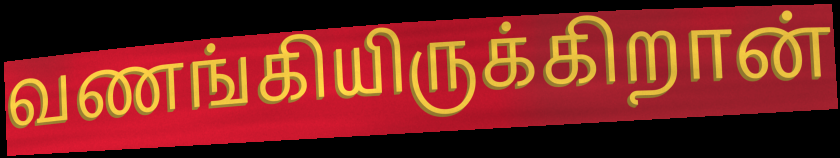
வணங்கியிருக்கிறான்